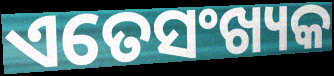
ଏତେସଂଖ୍ୟକ